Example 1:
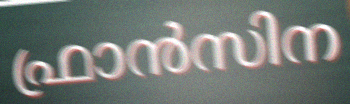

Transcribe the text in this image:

ഫ്രാൻസിന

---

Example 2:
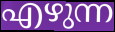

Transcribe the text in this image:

എഴുന്ന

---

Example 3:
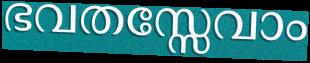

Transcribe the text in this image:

ഭവതസ്സേവാം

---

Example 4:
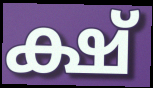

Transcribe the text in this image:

ക്ഷ്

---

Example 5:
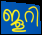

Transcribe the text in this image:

ജൂറി